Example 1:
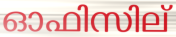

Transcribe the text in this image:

ഓഫിസില്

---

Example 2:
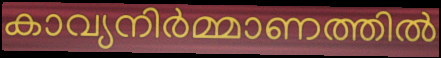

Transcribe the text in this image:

കാവ്യനിർമ്മാണത്തിൽ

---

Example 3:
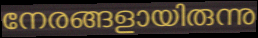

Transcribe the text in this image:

നേരങ്ങളായിരുന്നു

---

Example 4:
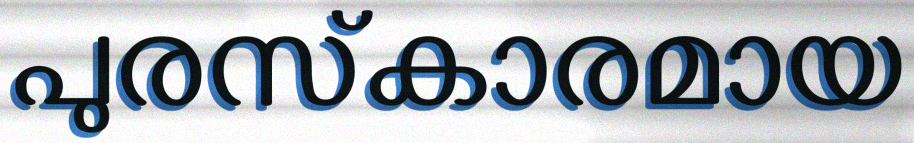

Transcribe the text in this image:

പുരസ്‌കാരമായ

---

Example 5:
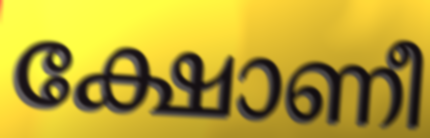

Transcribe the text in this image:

ക്ഷോണീ